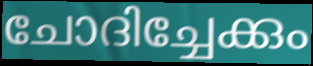
ചോദിച്ചേക്കും